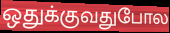
ஒதுக்குவதுபோல